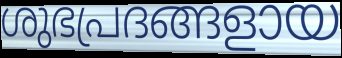
ശുഭപ്രദങ്ങളായ